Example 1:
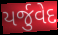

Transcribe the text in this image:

યર્જુવેદ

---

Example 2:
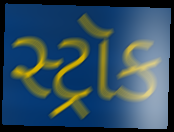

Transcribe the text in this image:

સ્ટ્રૉક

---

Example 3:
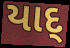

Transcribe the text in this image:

યાદ્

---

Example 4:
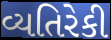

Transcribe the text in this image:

વ્યતિરેકી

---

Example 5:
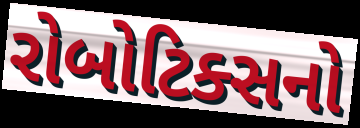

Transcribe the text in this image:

રોબોટિક્સનો